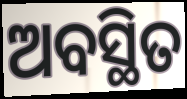
ଅବସ୍ଥିତ